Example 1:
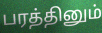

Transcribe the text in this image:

பரத்தினும்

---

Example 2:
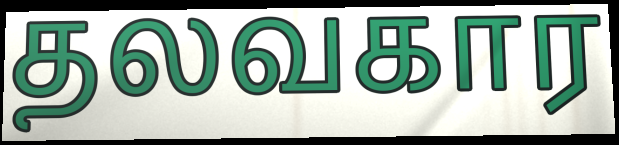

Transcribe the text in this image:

தலவகார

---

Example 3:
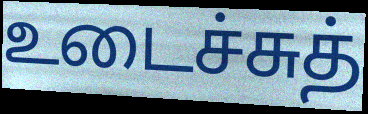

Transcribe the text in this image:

உடைச்சுத்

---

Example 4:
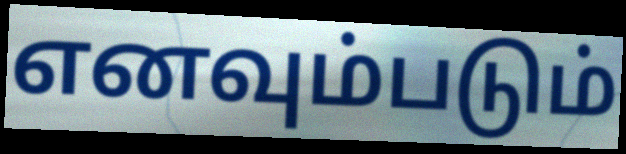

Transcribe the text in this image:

எனவும்படும்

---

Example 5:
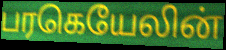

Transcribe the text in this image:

பரகெயேலின்